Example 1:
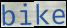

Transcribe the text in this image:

bike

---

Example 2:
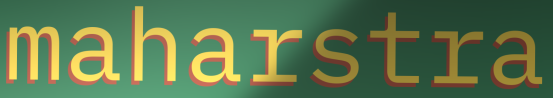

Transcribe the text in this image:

maharstra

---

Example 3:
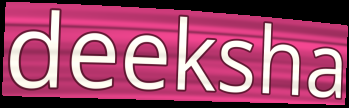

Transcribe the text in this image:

deeksha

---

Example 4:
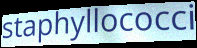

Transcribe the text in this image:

staphyllococci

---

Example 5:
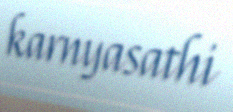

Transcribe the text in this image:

karnyasathi